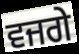
ਵਜਗੇ